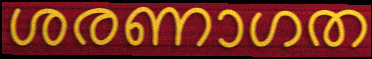
ശരണാഗത